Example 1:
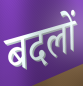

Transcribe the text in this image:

बदलों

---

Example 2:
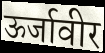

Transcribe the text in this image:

ऊर्जावीर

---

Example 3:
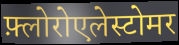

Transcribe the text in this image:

फ़्लोरोएलेस्टोमर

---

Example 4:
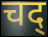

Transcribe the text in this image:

चद्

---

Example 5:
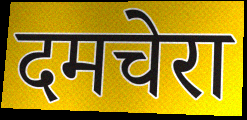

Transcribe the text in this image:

दमचेरा